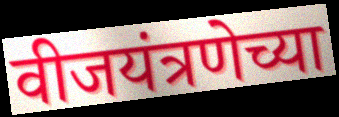
वीजयंत्रणेच्या